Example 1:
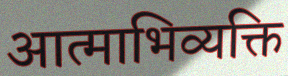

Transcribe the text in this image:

आत्माभिव्यक्ति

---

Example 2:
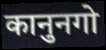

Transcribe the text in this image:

कानुनगो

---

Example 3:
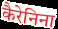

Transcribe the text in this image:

कैरेनिना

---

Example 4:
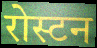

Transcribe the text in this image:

रोस्टन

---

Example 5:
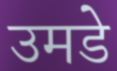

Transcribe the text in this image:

उमडे